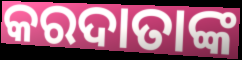
କରଦାତାଙ୍କ